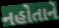
નહોતાને